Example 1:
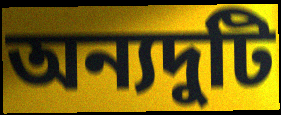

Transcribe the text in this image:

অন্যদুটি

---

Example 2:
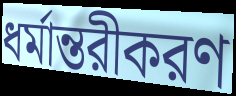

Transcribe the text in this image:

ধর্মান্তরীকরণ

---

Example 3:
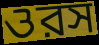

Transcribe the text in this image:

ওরস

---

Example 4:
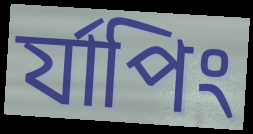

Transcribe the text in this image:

র্যাপিং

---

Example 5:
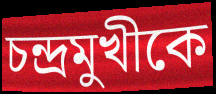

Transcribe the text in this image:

চন্দ্রমুখীকে